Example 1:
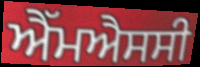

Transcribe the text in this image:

ਐੱਮਐਸਸੀ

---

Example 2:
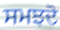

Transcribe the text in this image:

ਸਮਝਦੋ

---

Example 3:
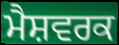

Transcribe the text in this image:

ਮੈਸ਼ਵਰਕ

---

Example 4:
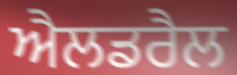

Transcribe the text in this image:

ਐਲਡਰੈਲ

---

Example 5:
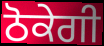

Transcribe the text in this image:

ਠੋਕੇਗੀ